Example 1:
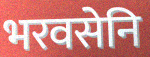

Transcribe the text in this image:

भरवसेनि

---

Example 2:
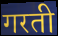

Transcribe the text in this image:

गरती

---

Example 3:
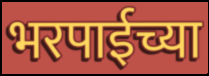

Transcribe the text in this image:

भरपाईच्या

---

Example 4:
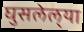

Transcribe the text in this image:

घुसलेल्या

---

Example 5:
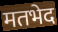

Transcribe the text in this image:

मतभेद